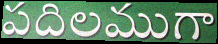
పదిలముగా